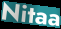
Nitaa